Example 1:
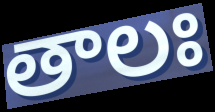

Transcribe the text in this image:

తాలః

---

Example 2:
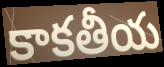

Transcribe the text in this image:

కాకతీయ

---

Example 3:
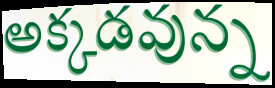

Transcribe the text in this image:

అక్కడవున్న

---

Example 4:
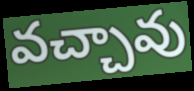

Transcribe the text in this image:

వచ్చావు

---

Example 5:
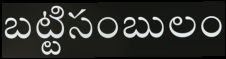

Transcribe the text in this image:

బట్టిసంబులం